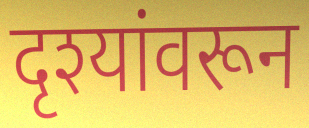
दृश्यांवरून